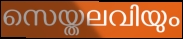
സെയ്തലവിയും